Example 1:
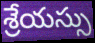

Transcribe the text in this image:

శ్రేయస్సు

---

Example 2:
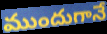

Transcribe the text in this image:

ముందుగానే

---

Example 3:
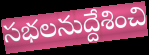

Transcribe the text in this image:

సభలనుద్దేశించి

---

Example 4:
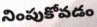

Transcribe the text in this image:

నింపుకోవడం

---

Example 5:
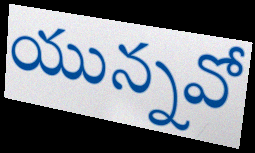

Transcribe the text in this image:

యున్నవో